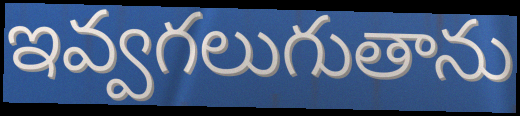
ఇవ్వగలుగుతాను